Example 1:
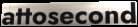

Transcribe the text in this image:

attosecond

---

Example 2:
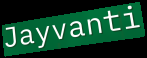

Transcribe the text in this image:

Jayvanti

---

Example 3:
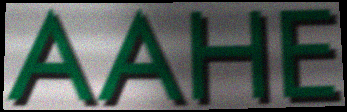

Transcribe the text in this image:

AAHE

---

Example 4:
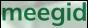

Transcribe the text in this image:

meegid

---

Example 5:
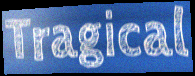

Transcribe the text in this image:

Tragical